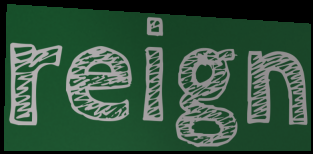
reign